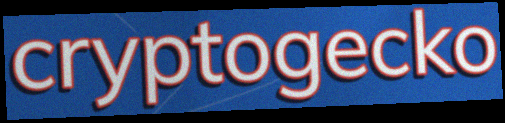
cryptogecko